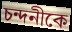
চন্দনীকে